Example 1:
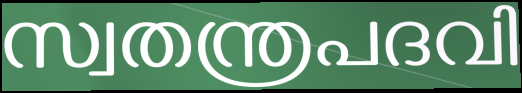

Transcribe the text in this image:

സ്വതന്ത്രപദവി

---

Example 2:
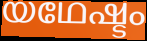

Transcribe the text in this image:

യഥേഷ്ടം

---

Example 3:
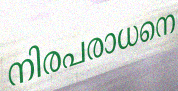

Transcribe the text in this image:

നിരപരാധനെ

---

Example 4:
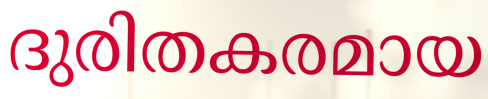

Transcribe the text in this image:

ദുരിതകരമായ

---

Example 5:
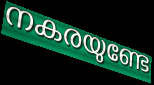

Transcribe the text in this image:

നകരയുണ്ടേ